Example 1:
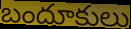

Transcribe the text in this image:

బందూకులు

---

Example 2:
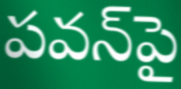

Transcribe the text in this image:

పవన్‌పై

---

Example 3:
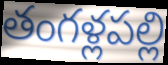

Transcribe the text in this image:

తంగళ్లపల్లి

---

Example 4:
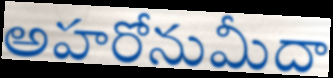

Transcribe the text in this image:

అహరోనుమీదా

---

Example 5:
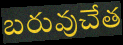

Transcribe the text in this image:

బరువుచేత